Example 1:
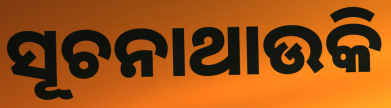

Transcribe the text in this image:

ସୂଚନାଥାଉକି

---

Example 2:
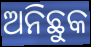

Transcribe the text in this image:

ଅନିଛୁକ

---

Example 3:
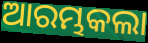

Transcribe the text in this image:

ଆରମ୍ଭକଲା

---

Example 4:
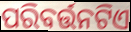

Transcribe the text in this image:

ପରିବର୍ତ୍ତନଟିଏ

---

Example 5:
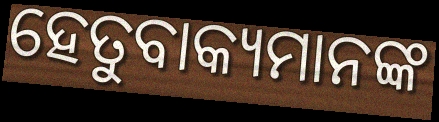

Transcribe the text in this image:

ହେତୁବାକ୍ୟମାନଙ୍କ